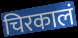
चिरकालं